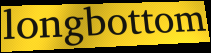
longbottom